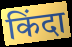
किंदा